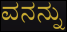
ವನನ್ನು